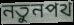
নতুনপথ